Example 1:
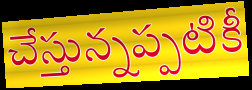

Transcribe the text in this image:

చేస్తున్నప్పటికీ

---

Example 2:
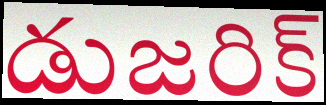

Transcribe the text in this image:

డుజరిక్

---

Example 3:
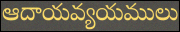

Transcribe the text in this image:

ఆదాయవ్యయములు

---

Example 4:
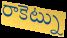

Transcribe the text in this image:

రాకెట్ను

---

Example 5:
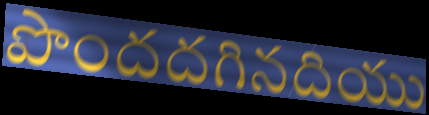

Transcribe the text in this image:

పొందదగినదియు